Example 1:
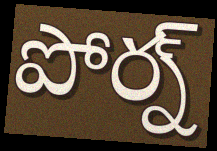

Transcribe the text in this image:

పోర్న్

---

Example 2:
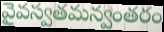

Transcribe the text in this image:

వైవస్వతమన్వంతరం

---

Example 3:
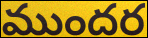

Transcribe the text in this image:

ముందర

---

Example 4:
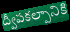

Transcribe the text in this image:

ద్వీపకల్పానికి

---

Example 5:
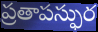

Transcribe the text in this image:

ప్రతాపస్ఫుర